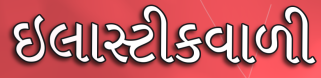
ઇલાસ્ટીકવાળી